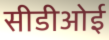
सीडीओई